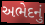
અભેદનું